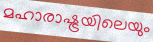
മഹാരാഷ്ട്രയിലെയും